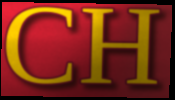
CH